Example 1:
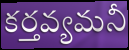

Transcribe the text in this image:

కర్తవ్యమనీ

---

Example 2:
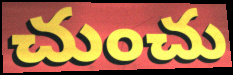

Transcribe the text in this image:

చుంచు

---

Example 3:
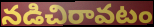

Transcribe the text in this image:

నడిచిరావటం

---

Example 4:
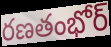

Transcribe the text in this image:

రణతంభోర్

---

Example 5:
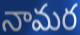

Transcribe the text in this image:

నామర